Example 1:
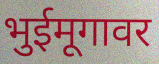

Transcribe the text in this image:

भुईमूगावर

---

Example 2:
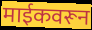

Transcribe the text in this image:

माईकवरून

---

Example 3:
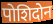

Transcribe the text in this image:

पोशिदोन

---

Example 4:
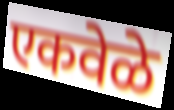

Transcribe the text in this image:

एकवेळे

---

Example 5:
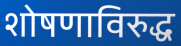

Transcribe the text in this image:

शोषणाविरुद्ध